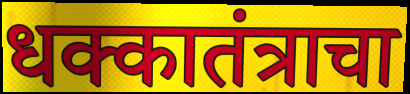
धक्कातंत्राचा